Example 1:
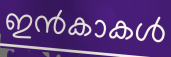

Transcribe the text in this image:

ഇൻകാകൾ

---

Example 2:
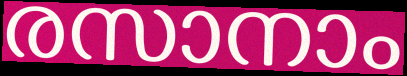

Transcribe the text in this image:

രസാനാം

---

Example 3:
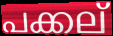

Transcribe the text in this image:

പക്കല്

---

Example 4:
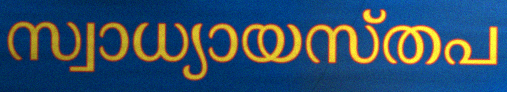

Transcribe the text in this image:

സ്വാധ്യായസ്തപ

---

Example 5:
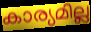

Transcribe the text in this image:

കാര്യമില്ല